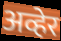
अव्हेर